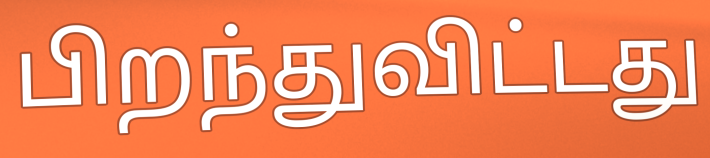
பிறந்துவிட்டது